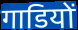
गाडियों